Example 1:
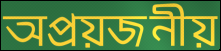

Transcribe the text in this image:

অপ্রয়জনীয়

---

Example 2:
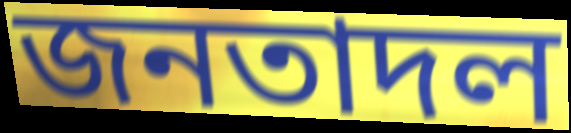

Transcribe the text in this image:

জনতাদল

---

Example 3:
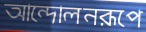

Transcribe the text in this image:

আন্দোলনরূপে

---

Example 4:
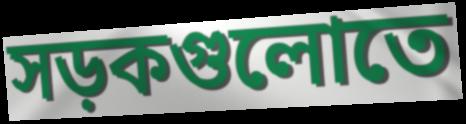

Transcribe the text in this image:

সড়কগুলোতে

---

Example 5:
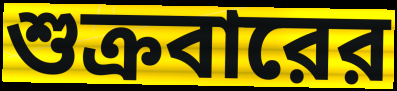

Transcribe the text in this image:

শুক্রবারের